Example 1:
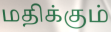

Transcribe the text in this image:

மதிக்கும்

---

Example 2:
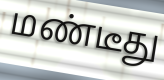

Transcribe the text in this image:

மண்டீது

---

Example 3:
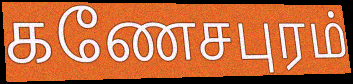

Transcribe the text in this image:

கணேசபுரம்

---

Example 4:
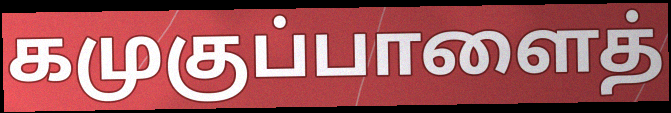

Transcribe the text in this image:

கமுகுப்பாளைத்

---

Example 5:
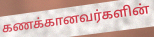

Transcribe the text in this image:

கணக்கானவர்களின்